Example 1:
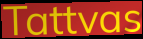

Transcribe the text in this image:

Tattvas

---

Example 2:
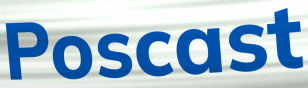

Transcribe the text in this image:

Poscast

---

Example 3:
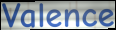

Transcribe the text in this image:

Valence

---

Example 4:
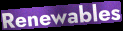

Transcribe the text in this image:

Renewables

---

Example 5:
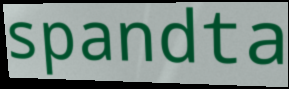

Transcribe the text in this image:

spandta